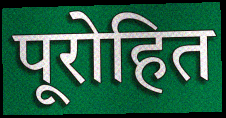
पूरोहित